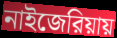
নাইজেরিয়ায়